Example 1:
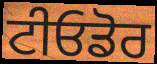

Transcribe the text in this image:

ਟੀਓਡੋਰ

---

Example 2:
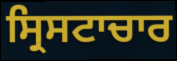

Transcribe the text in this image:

ਸ੍ਰਿਸਟਾਚਾਰ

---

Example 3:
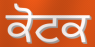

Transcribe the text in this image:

ਕੋਟਕ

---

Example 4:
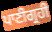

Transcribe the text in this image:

ਪਾਣੀਗ੍ਰਹੀ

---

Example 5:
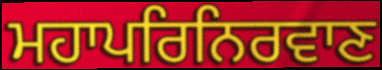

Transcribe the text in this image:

ਮਹਾਪਰਿਨਿਰਵਾਣ